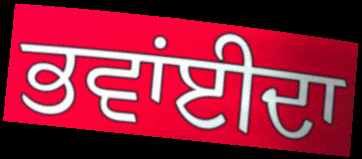
ਭਵਾਂਈਦਾ